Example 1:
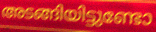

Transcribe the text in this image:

അടങ്ങിയിട്ടുണ്ടോ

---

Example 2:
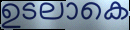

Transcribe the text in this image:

ഉടലാകെ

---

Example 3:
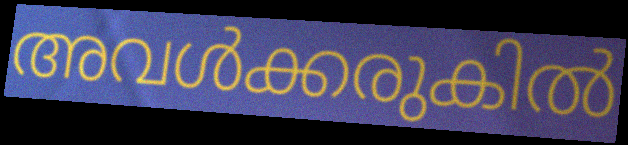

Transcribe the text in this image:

അവൾക്കരുകിൽ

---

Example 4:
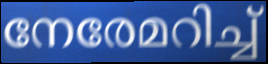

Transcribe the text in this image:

നേരേമറിച്ച്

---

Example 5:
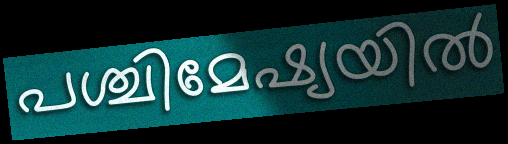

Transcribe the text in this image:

പശ്ചിമേഷ്യയിൽ